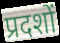
प्रदशों